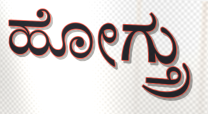
ಹೋಗ್ತ್ರು